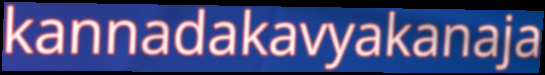
kannadakavyakanaja